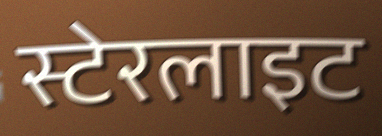
स्टेरलाइट